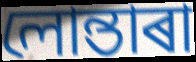
লোন্তাৰা